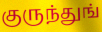
குருந்துங்